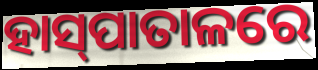
ହାସ୍‌ପାତାଳରେ